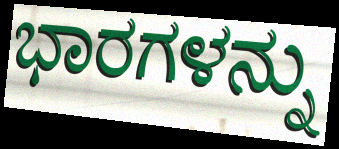
ಭಾರಗಳನ್ನು